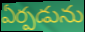
ఏర్పడును